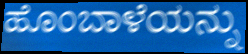
ಹೊಂಬಾಳೆಯನ್ನು